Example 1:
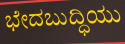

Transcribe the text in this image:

ಭೇದಬುದ್ಧಿಯು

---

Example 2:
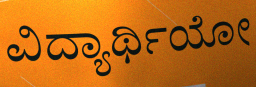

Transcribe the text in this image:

ವಿದ್ಯಾರ್ಥಿಯೋ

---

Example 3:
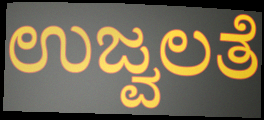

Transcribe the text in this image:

ಉಜ್ವಲತೆ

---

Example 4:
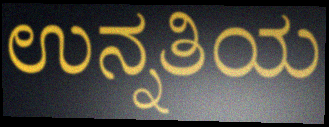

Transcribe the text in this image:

ಉನ್ನತಿಯ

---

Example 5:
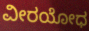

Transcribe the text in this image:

ವೀರಯೋಧ